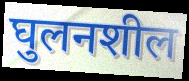
घुलनशील